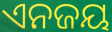
ଏନଜୟ